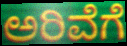
ಅರಿವೆಗೆ